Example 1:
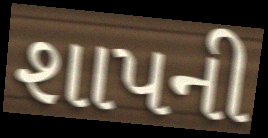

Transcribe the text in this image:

શાપની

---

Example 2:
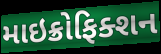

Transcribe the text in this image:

માઇક્રોફિક્શન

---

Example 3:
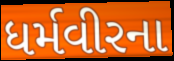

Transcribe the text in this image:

ધર્મવીરના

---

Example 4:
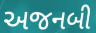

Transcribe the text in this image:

અજનબી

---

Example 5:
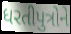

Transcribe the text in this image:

ધરતીપુત્રોને